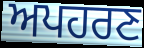
ਅਪਹਰਣ